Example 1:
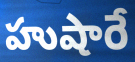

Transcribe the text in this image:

హుషారే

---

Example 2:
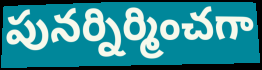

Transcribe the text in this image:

పునర్నిర్మించగా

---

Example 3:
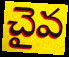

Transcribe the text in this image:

చైవ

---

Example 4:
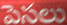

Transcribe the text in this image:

పెసలు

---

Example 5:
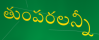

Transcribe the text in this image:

తుంపరలన్నీ